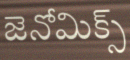
జెనోమిక్స్